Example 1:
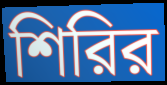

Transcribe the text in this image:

শিরির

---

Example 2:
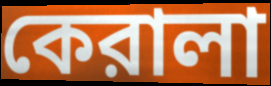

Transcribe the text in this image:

কেরালা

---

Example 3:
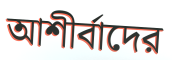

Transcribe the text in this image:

আশীর্বাদের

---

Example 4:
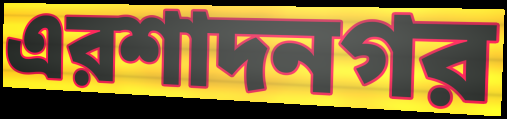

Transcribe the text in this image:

এরশাদনগর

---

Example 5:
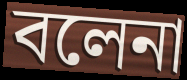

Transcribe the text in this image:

বলেনা